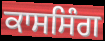
ਕਾਸਸਿੰਗ